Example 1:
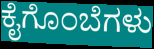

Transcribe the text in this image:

ಕೈಗೊಂಬೆಗಳು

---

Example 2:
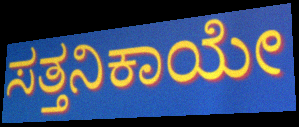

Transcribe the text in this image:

ಸತ್ತನಿಕಾಯೇ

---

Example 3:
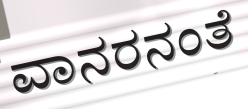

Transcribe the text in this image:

ವಾನರನಂತೆ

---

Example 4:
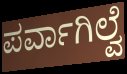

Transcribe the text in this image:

ಪರ್ವಾಗಿಲ್ವೆ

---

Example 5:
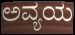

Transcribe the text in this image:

ಅವ್ಯಯ